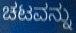
ಚಟವನ್ನು